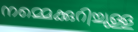
നമ്മെക്കുറിച്ചുള്ള